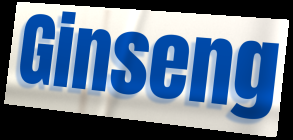
Ginseng